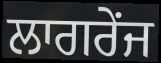
ਲਾਗਰੇਂਜ